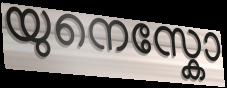
യുനെസ്കോ